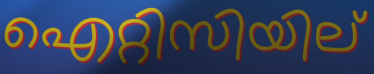
ഐറ്റിസിയില്